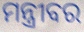
ମନ୍ତ୍ରୀବର